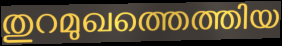
തുറമുഖത്തെത്തിയ